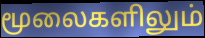
மூலைகளிலும்